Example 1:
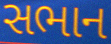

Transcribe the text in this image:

સભાન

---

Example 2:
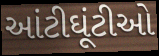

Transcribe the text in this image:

આંટીઘૂંટીઓ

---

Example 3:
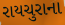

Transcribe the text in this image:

રાયચુરાના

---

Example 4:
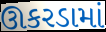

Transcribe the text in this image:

ઊકરડામાં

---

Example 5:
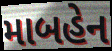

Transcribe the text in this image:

માબહેન